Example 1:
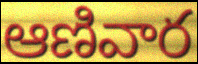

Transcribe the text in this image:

ఆణివార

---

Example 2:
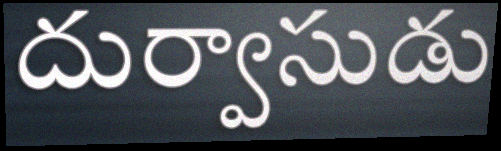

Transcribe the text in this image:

దుర్వాసుడు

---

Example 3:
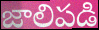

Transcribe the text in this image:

జాలిపడి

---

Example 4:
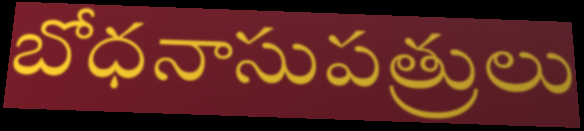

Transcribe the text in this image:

బోధనాసుపత్రులు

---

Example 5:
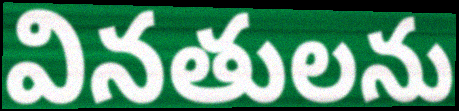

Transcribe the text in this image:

వినతులను